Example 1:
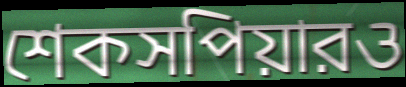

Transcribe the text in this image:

শেকসপিয়ারও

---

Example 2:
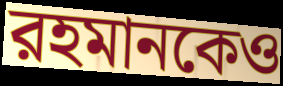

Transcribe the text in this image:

রহমানকেও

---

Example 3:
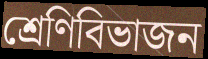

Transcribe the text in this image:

শ্রেণিবিভাজন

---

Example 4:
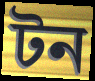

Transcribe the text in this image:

টন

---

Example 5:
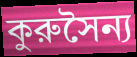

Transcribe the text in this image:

কুরুসৈন্য